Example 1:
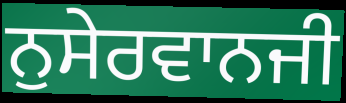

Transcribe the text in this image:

ਨੁਸੇਰਵਾਨਜੀ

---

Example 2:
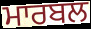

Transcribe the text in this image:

ਮਾਰਬਲ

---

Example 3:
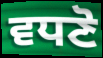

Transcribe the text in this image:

ਵਧਣੋ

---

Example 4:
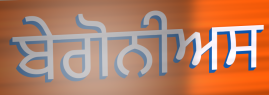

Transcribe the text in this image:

ਬੇਗੋਨੀਅਸ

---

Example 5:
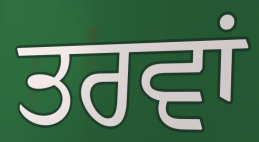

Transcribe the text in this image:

ਤਰਵਾਂ